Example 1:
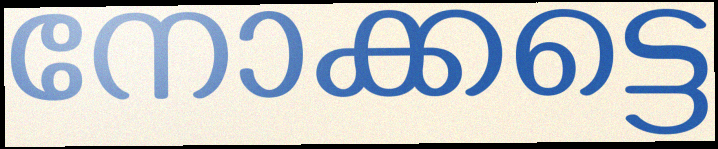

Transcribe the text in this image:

നോക്കട്ടെ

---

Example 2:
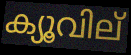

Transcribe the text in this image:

ക്യൂവില്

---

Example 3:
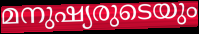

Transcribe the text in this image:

മനുഷ്യരുടെയും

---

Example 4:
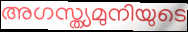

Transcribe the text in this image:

അഗസ്ത്യമുനിയുടെ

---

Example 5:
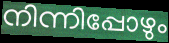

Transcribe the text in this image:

നിന്നിപ്പോഴും